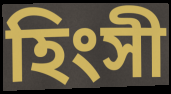
হিংসী